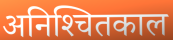
अनिश्‍चितकाल